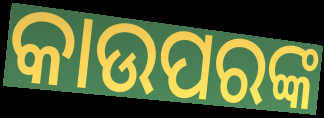
କାଉପରଙ୍କ